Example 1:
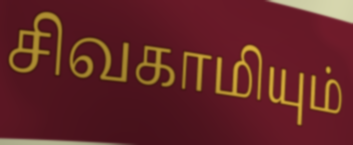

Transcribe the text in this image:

சிவகாமியும்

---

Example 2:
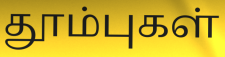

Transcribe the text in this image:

தூம்புகள்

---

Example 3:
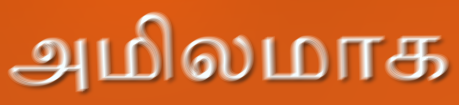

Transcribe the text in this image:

அமிலமாக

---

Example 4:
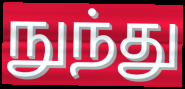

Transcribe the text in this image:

நுந்து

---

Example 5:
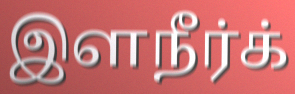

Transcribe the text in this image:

இளநீர்க்